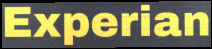
Experian